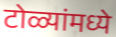
टोळ्यांमध्ये